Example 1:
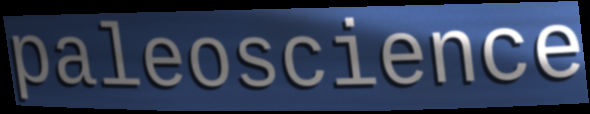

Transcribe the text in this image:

paleoscience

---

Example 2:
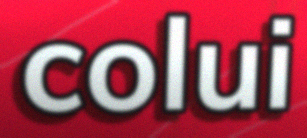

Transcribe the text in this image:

colui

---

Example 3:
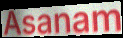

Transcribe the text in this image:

Asanam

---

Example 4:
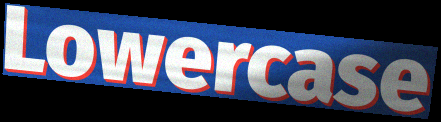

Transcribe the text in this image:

Lowercase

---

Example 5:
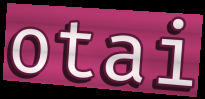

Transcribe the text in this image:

otai